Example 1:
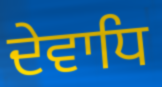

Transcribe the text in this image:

ਦੇਵਾਧਿ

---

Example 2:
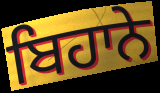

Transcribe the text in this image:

ਬਿਹਾਨੇ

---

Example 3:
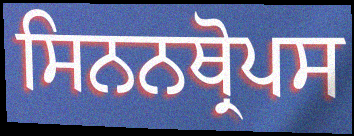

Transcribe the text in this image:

ਸਿਨਨਥ੍ਰੋਪਸ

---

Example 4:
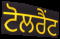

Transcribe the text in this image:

ਟੋਲਰੈਂਟ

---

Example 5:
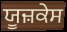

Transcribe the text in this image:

ਯੂਜ਼ਕੇਸ